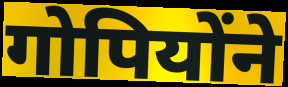
गोपियोंने